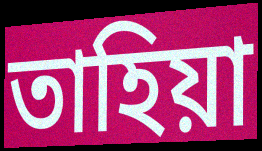
তাহিয়া